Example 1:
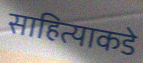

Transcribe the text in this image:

साहित्याकडे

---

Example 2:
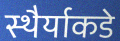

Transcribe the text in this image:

स्थैर्याकडे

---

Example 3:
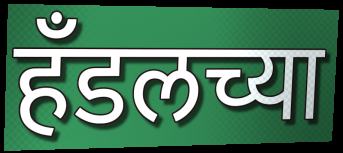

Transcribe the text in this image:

हॅंडलच्या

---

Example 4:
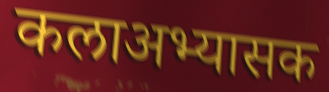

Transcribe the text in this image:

कलाअभ्यासक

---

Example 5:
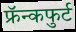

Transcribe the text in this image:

फ्रॅन्कफुर्ट